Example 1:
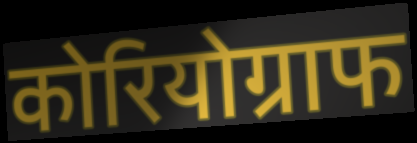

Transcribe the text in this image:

कोरियोग्राफ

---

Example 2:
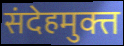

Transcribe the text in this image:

संदेहमुक्त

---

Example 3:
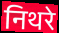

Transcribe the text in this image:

निथरे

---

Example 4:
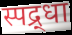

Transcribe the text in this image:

स्पद्र्धा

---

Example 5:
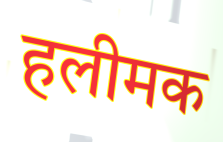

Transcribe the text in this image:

हलीमक